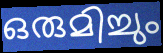
ഒരുമിച്ചും